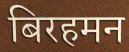
बिरहमन